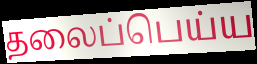
தலைப்பெய்ய